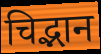
चिद्भान